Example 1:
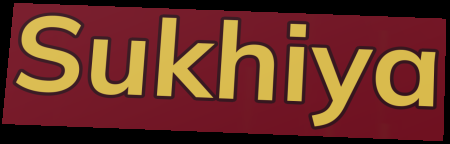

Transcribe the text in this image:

Sukhiya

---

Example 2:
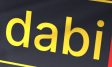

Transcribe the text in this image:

dabi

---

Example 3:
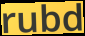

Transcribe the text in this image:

rubd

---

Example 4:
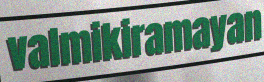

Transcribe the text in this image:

valmikiramayan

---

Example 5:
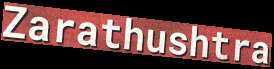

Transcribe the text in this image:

Zarathushtra